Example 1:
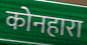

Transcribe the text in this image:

कोनहारा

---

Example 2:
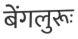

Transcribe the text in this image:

बेंगलुरूः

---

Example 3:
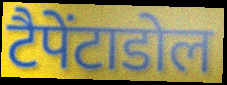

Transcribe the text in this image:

टैपेंटाडोल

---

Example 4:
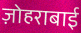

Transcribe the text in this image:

ज़ोहराबाई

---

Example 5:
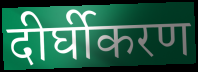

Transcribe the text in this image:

दीर्घीकरण